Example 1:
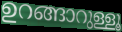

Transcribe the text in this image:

ഉറങ്ങാറുള്ളൂ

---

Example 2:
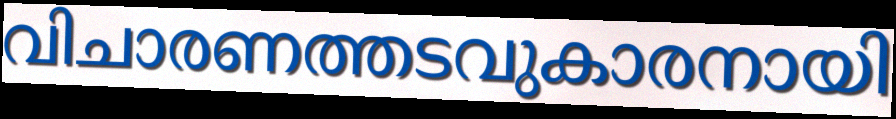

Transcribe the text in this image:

വിചാരണത്തടവുകാരനായി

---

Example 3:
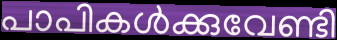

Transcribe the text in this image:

പാപികൾക്കുവേണ്ടി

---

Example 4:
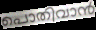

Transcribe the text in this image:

പൊതിവാൻ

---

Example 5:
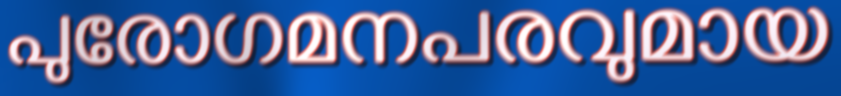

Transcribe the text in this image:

പുരോഗമനപരവുമായ